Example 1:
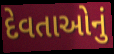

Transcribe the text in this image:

દેવતાઓનું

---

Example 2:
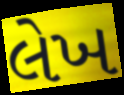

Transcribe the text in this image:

લેખ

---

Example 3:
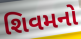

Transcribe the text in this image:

શિવમનો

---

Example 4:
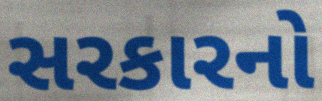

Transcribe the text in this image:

સરકારનો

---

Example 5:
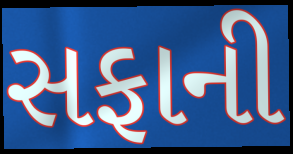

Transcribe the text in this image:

સફાની